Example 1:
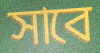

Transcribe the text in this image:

সাবে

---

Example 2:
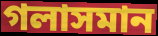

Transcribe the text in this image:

গলাসমান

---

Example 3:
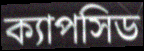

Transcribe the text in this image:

ক্যাপসিড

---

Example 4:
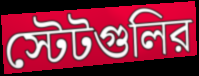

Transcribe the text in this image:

স্টেটগুলির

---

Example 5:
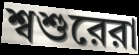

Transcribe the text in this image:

শ্বশুরেরা